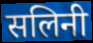
सलिनी